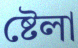
ষ্টেলা